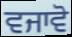
ਵਜਾਵੋ